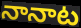
నానాట